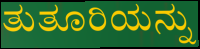
ತುತೂರಿಯನ್ನು